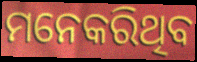
ମନେକରିଥିବ